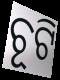
ଚୂଟି